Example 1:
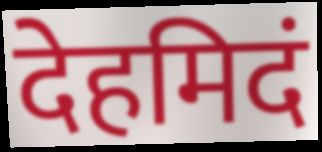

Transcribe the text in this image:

देहमिदं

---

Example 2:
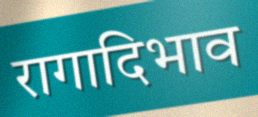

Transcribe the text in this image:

रागादिभाव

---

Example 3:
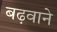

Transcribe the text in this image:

बढ़वाने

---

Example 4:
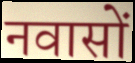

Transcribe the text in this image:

नवासों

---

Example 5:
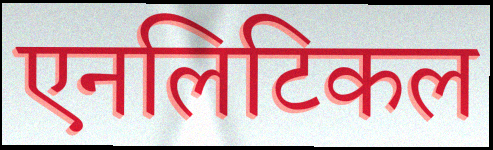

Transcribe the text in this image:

एनलिटिकल